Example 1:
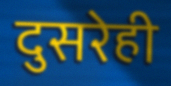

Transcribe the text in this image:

दुसरेही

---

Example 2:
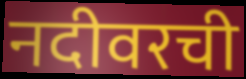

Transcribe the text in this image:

नदीवरची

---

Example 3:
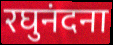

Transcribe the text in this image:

रघुनंदना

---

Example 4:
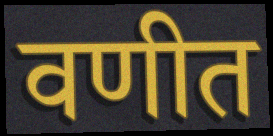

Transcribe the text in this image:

वणीत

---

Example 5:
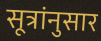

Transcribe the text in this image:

सूत्रांनुसार